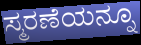
ಸ್ಮರಣೆಯನ್ನೂ